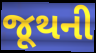
જૂથની